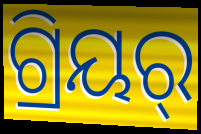
ଗ୍ରିୟର୍